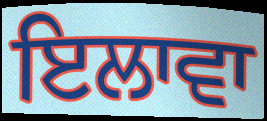
ਇਲਾਵਾ